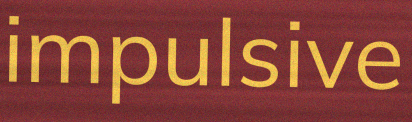
impulsive